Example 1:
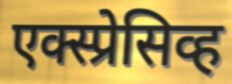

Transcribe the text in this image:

एक्स्प्रेसिव्ह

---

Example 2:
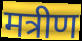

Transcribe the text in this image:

मत्रीण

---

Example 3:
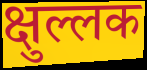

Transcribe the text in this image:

क्षुल्लक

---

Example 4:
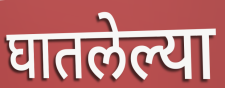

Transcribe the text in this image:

घातलेल्या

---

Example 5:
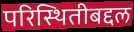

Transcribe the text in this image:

परिस्थितीबद्दल